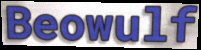
Beowulf